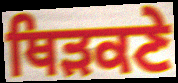
ਥਿੜਕਣੇ